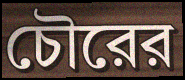
চৌরের